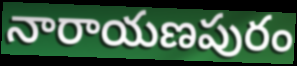
నారాయణపురం